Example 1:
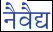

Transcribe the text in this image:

नैवैद्य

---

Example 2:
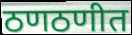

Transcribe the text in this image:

ठणठणीत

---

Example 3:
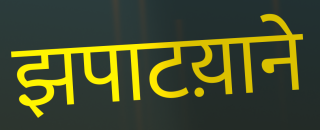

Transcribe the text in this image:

झपाटय़ाने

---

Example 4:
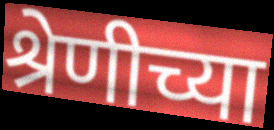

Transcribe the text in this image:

श्रेणीच्या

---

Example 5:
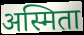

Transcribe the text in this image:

अस्मिता